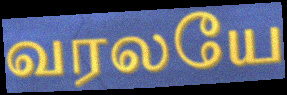
வரலயே